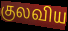
குலவிய